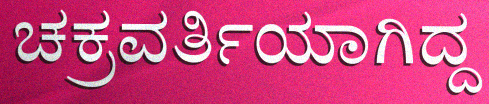
ಚಕ್ರವರ್ತಿಯಾಗಿದ್ದ